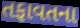
તફાવતના